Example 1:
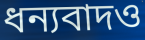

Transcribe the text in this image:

ধন্যবাদও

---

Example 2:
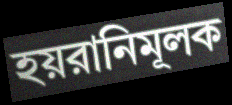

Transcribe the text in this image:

হয়রানিমূলক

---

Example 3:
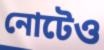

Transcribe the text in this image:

নোটেও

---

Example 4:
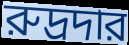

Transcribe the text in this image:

রুদ্রদার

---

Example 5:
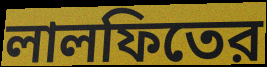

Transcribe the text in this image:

লালফিতের